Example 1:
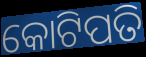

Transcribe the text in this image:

କୋଟିପତି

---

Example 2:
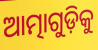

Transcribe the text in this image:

ଆତ୍ମାଗୁଡ଼ିକୁ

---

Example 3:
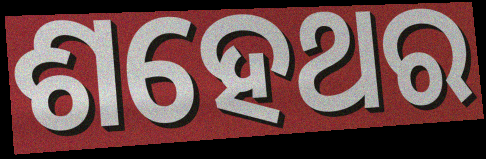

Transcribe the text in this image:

ଶହେଥର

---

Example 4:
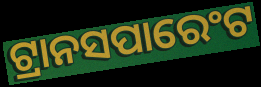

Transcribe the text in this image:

ଟ୍ରାନସପାରେଂଟ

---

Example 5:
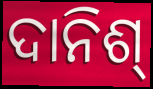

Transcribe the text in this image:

ଦାନିଶ୍